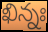
ఖిన్నః